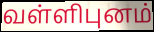
வள்ளிபுனம்